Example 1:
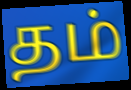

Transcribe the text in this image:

தம்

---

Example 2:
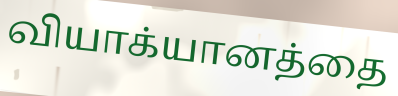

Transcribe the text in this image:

வியாக்யானத்தை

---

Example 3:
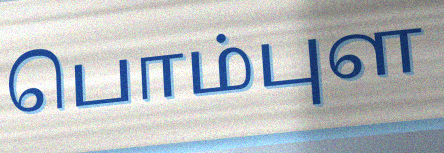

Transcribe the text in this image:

பொம்புள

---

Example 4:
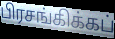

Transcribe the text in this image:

பிரசங்கிக்கப்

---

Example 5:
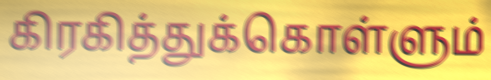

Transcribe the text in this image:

கிரகித்துக்கொள்ளும்